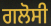
ਗਲੋਸੀ